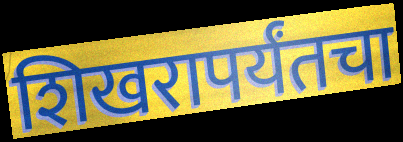
शिखरापर्यंतचा